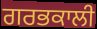
ਗਰਭਕਾਲੀ